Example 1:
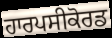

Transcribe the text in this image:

ਹਾਰਪਸੀਕੋਰਡ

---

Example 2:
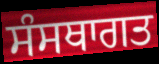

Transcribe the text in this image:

ਸੰਸਥਾਗਤ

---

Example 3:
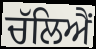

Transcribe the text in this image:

ਚੱਲਿਐਂ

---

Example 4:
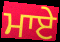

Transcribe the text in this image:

ਮਾਏ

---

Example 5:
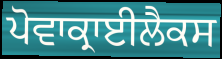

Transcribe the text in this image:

ਪੋਵਾਕ੍ਰਾਈਲੈਕਸ